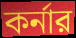
কর্নার